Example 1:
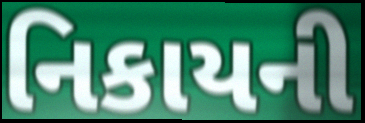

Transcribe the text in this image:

નિકાયની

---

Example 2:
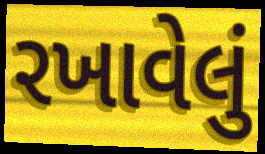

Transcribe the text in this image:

રખાવેલું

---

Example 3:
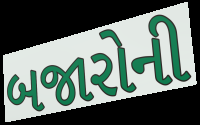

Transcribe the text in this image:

બજારોની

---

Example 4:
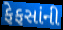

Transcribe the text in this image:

ફેફસાંની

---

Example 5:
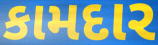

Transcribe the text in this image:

કામદાર